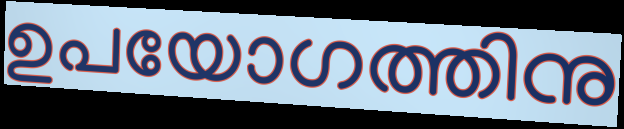
ഉപയോഗത്തിനു